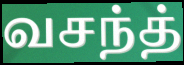
வசந்த்